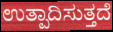
ಉತ್ಪಾದಿಸುತ್ತದೆ